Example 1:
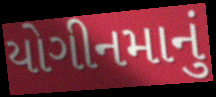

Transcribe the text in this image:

યોગીનમાનું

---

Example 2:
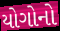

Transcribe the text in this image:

યોગોનો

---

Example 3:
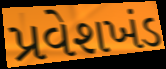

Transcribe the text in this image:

પ્રવેશખંડ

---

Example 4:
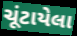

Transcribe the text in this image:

ચૂંટાયેલા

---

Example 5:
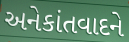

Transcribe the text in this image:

અનેકાંતવાદને